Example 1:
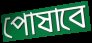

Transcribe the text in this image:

পোষাবে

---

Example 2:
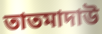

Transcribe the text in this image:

তাতমাদাউ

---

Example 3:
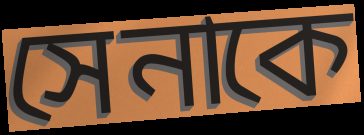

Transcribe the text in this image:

সেনাকে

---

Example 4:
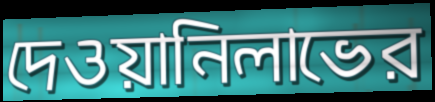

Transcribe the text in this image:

দেওয়ানিলাভের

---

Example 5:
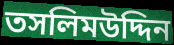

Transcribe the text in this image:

তসলিমউদ্দিন